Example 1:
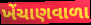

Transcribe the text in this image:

ખેંચાણવાળા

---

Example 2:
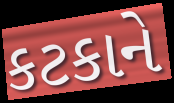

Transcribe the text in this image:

કટકાને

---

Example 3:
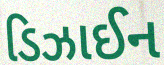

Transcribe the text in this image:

ડિઝાઈન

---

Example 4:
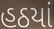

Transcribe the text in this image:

હઠયાં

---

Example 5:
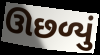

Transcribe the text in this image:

ઊછળ્યું